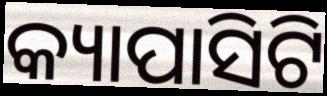
କ୍ୟାପାସିଟି